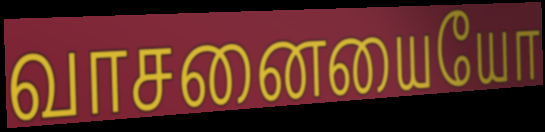
வாசனையையோ